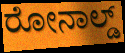
ರೋನಾಲ್ಡ್